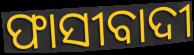
ଫାସୀବାଦୀ